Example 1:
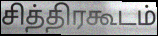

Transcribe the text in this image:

சித்திரகூடம்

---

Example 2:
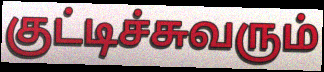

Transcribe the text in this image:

குட்டிச்சுவரும்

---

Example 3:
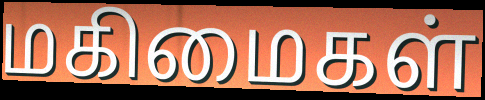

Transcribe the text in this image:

மகிமைகள்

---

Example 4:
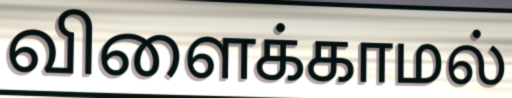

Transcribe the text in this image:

விளைக்காமல்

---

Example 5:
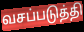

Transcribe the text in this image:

வசப்படுத்தி